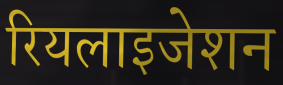
रियलाइजेशन